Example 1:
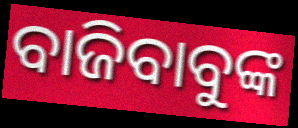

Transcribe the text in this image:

ବାଜିବାବୁଙ୍କ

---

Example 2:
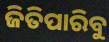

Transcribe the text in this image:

ଜିତିପାରିବୁ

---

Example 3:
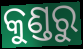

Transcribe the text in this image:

କୁଣ୍ଡରୁ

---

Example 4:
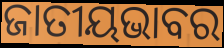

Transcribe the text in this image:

ଜାତୀୟଭାବର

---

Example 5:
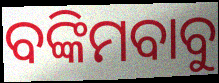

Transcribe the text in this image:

ବଙ୍କିମବାବୁ